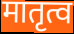
मातृत्व